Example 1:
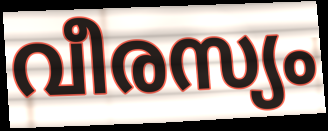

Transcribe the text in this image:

വീരസ്യം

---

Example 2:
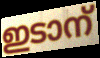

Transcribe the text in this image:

ഇടാന്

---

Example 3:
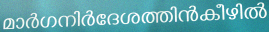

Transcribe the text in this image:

മാർഗനിർദേശത്തിൻകീഴിൽ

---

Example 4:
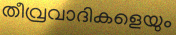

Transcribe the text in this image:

തീവ്രവാദികളെയും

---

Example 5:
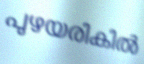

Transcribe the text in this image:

പുഴയരികിൽ